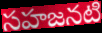
సహజనటి